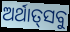
ଅର୍ଥାତ୍‌ସବୁ